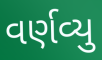
વર્ણવ્યુ